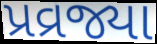
પ્રવ્રજ્યા